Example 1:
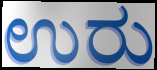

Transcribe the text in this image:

ಉರು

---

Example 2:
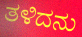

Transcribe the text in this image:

ತಳಿದನು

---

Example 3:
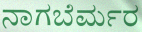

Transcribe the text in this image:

ನಾಗಬೆರ್ಮರ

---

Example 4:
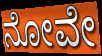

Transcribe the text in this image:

ನೋವೇ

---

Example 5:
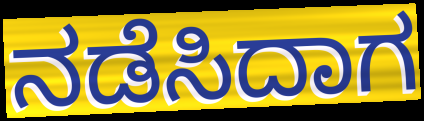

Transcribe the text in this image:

ನಡೆಸಿದಾಗ